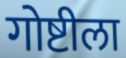
गोष्टीला